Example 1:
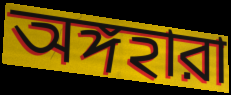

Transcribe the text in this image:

অঙ্গহারা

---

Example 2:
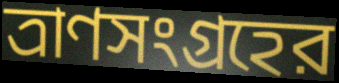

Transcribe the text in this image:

ত্রাণসংগ্রহের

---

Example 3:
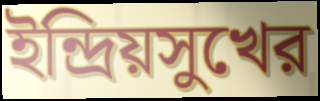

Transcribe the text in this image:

ইন্দ্রিয়সুখের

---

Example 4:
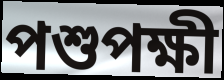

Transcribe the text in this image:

পশুপক্ষী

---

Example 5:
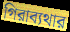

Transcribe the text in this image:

গিরাব্যথার